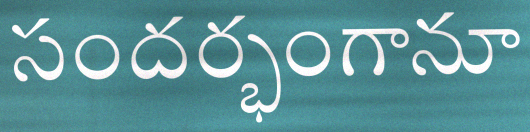
సందర్భంగానూ